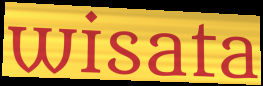
wisata